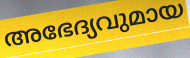
അഭേദ്യവുമായ